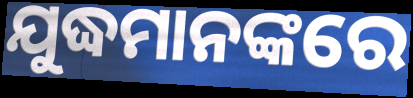
ଯୁଦ୍ଧମାନଙ୍କରେ